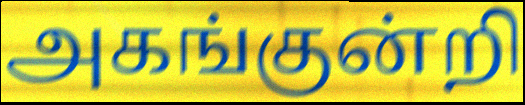
அகங்குன்றி